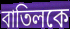
বাতিলকে